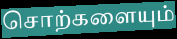
சொற்களையும்